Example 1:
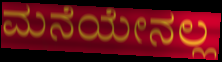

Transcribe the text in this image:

ಮನೆಯೇನಲ್ಲ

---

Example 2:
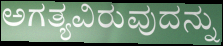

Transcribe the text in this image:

ಅಗತ್ಯವಿರುವುದನ್ನು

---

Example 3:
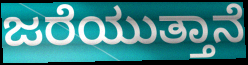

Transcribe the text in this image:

ಜರೆಯುತ್ತಾನೆ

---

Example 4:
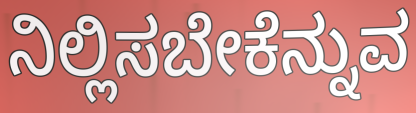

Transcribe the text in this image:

ನಿಲ್ಲಿಸಬೇಕೆನ್ನುವ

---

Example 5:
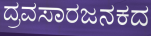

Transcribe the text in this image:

ದ್ರವಸಾರಜನಕದ